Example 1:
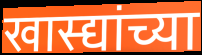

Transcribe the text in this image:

खास्द्यांच्या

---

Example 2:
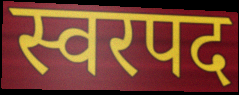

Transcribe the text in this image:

स्वरपद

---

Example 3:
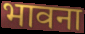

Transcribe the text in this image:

भावना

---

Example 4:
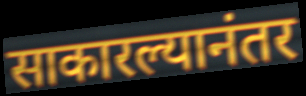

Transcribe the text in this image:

साकारल्यानंतर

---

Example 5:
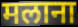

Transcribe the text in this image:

मलाना